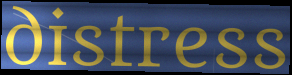
distress